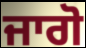
ਜਾਗੋ